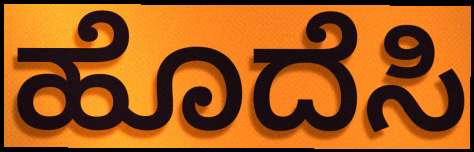
ಹೊದೆಸಿ